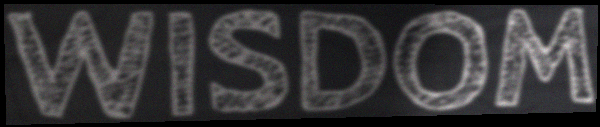
WISDOM